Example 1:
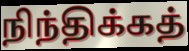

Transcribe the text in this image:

நிந்திக்கத்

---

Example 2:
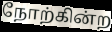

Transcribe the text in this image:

நோற்கின்ற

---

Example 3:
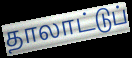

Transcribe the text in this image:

தாலாட்டுப்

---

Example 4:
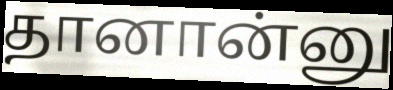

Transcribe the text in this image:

தானான்னு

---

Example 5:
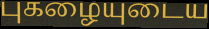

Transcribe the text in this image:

புகழையுடைய